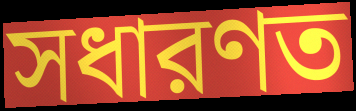
সধারণত